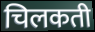
चिलकती